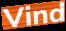
Vind